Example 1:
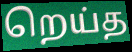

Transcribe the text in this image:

றெய்த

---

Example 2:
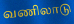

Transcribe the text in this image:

வணிலாடு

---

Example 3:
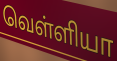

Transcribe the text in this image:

வெள்ளியா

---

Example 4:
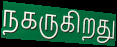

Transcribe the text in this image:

நகருகிறது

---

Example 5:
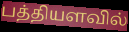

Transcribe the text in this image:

பத்தியளவில்